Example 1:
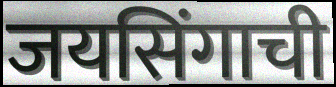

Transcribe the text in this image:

जयसिंगाची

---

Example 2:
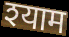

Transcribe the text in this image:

श्‍याम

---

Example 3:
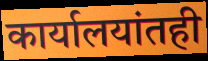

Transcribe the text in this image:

कार्यालयांतही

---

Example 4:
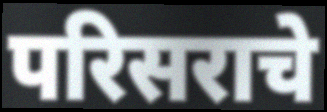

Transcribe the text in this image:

परिसराचे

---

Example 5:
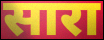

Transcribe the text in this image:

सारा